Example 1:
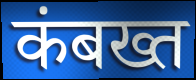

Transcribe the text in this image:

कंबख्त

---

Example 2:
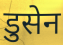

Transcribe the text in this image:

डुसेन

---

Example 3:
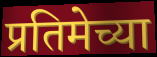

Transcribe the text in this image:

प्रतिमेच्या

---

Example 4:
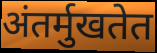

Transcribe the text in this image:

अंतर्मुखतेत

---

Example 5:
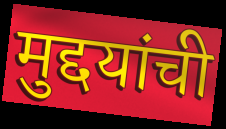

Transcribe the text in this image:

मुद्दयांची